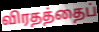
விரதத்தைப்